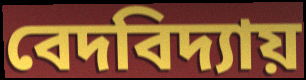
বেদবিদ্যায়